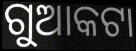
ଗୁଆକଟା